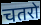
चतरो